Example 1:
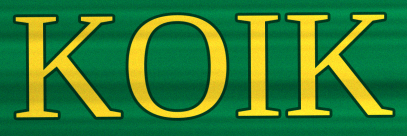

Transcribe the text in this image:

KOIK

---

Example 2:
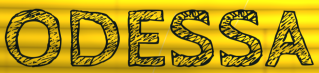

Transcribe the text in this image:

ODESSA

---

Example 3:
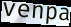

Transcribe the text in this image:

venpa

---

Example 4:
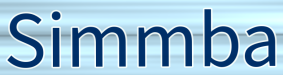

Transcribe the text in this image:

Simmba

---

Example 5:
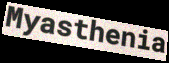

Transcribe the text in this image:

Myasthenia